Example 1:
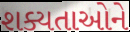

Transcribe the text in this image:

શક્યતાઓને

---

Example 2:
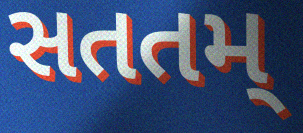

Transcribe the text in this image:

સતતમ્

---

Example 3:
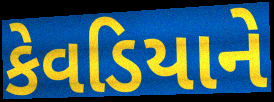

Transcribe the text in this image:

કેવડિયાને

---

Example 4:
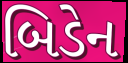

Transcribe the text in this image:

બિડેન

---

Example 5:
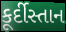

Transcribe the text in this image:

કૂર્દીસ્તાન